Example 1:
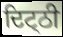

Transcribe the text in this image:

ਦਿਟ੍ਠੀ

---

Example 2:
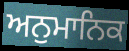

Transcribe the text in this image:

ਅਨੁਮਾਨਿਕ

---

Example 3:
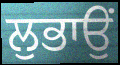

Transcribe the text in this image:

ਲੁਭਾਉਂ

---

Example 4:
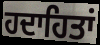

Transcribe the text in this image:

ਹਦਾਹਿਤਾਂ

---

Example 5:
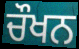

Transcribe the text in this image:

ਚੌਖਨ